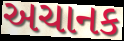
અચાનક